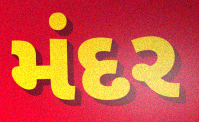
મંદર